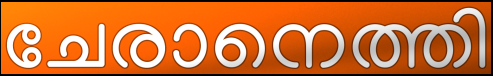
ചേരാനെത്തി